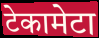
टेकामेटा